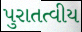
પુરાતત્વીય